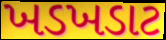
ખડખડાટ